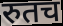
रुतच